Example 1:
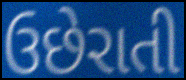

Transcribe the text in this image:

ઉછેરાતી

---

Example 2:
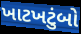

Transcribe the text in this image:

ખાટખટુંબો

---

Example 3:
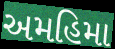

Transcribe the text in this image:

અમહિમા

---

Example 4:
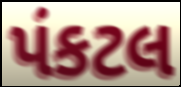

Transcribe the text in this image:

પંકટલ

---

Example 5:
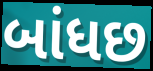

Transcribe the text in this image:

બાંધછ